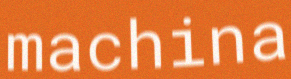
machina